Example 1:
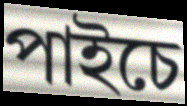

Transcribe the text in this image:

পাইচে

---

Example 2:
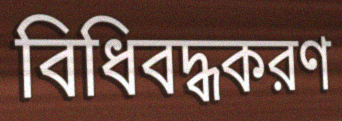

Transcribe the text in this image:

বিধিবদ্ধকরণ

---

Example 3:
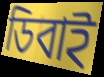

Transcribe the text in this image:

ডিবাই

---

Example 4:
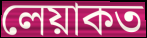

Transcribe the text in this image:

লেয়াকত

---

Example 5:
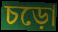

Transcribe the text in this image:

চড়ো